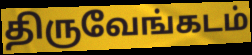
திருவேங்கடம்